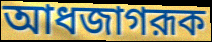
আধজাগরূক